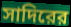
সাদিরের